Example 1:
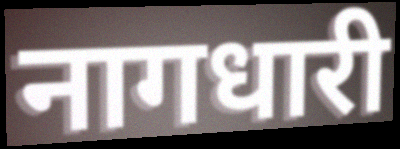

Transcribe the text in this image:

नागधारी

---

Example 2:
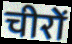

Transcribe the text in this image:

चीरों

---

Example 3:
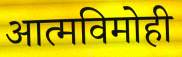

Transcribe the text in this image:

आत्मविमोही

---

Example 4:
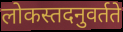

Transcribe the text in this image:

लोकस्तदनुवर्तते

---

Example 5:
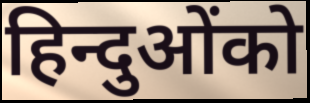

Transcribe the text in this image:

हिन्दुओंको